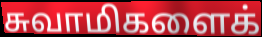
சுவாமிகளைக்